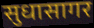
सुधासागर